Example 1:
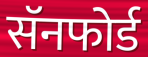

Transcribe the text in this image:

सॅनफोर्ड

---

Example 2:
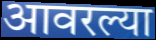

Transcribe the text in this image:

आवरल्या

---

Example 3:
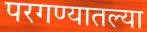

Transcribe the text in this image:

परगण्यातल्या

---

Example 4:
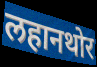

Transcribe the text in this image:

लहानथोर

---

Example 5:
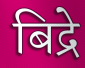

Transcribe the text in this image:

बिद्रे